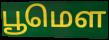
பூமௌ